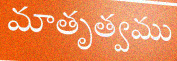
మాతృత్వము